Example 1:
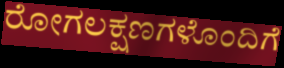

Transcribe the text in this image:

ರೋಗಲಕ್ಷಣಗಳೊಂದಿಗೆ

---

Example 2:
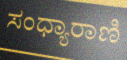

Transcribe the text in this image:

ಸಂಧ್ಯಾರಾಣಿ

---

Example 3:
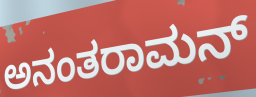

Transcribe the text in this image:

ಅನಂತರಾಮನ್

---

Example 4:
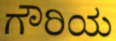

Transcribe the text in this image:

ಗೌರಿಯ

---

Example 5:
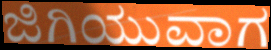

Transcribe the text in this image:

ಜಿಗಿಯುವಾಗ